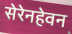
सेरेनहेवन